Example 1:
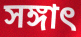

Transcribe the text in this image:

সঙ্গাৎ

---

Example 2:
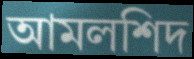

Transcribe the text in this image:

আমলশিদ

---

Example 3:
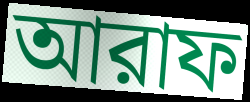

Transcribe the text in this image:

আরাফ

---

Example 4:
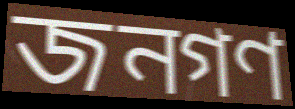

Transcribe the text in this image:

জনগণ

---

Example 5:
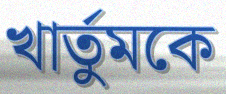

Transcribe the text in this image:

খার্তুমকে